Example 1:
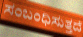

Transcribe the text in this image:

ಸಂಬಂಧಿಸುತ್ತದೆ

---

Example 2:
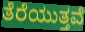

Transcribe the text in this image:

ತೆರೆಯುತ್ತವೆ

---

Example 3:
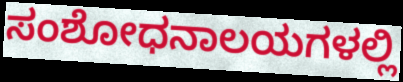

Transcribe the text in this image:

ಸಂಶೋಧನಾಲಯಗಳಲ್ಲಿ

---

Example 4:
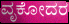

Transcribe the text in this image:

ವೃಕೋದರ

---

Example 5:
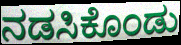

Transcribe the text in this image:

ನಡಸಿಕೊಂಡು